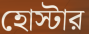
হোস্টার